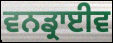
ਵਨਡ੍ਰਾਈਵ